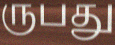
ருபது